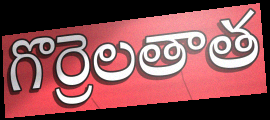
గొర్రెలతాత